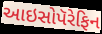
આઇસોપૅરેફિન